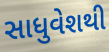
સાધુવેશથી